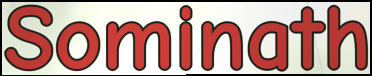
Sominath